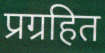
प्रग्रहित